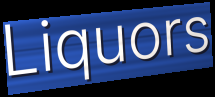
Liquors